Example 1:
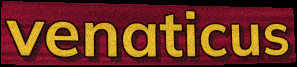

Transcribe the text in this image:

venaticus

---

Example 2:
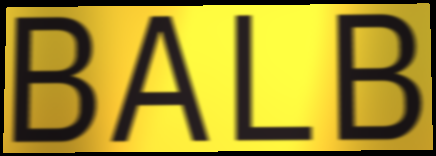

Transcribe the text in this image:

BALB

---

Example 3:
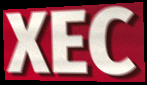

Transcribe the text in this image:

XEC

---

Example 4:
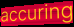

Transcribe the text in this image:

accuring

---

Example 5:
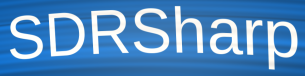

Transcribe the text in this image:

SDRSharp